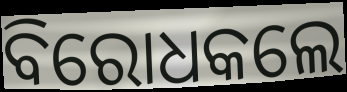
ବିରୋଧକଲେ